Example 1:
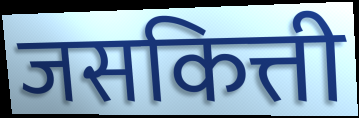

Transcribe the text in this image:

जसकित्ती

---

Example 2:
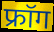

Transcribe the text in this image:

फ्रॉग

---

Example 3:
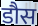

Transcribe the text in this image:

डौस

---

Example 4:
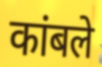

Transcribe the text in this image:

कांबले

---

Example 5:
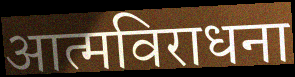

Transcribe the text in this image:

आत्मविराधना